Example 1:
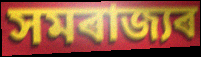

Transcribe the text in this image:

সমৰাজ্যৰ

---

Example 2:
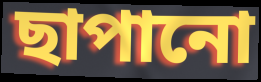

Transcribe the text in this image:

ছাপানো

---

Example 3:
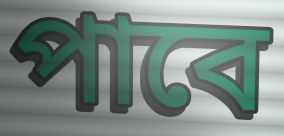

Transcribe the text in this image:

পাবে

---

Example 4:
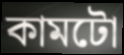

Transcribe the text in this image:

কামটো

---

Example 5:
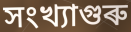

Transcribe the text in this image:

সংখ্যাগুৰু